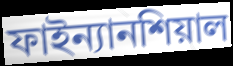
ফাইন্যানশিয়াল